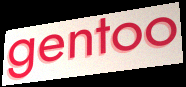
gentoo